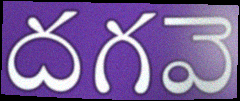
దగవె